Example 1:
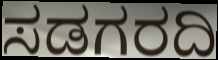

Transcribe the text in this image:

ಸಡಗರದಿ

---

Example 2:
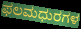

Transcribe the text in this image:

ಫಲಮಧುರಗಳ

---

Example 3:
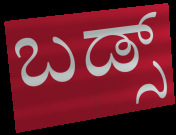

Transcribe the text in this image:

ಬಡ್ಸ್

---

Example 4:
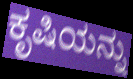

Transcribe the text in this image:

ಕೃಷಿಯನ್ನು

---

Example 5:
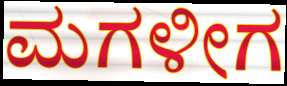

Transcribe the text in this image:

ಮಗಳೀಗ